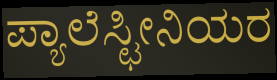
ಪ್ಯಾಲೆಸ್ಟೀನಿಯರ